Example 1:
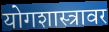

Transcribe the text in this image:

योगशास्त्रावर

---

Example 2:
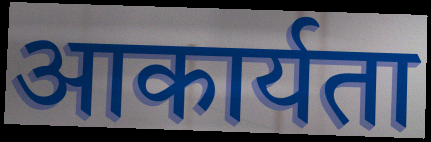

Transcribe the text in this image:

आकार्यता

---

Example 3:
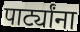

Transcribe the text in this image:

पार्ट्यांना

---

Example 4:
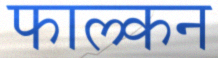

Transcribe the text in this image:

फाल्कन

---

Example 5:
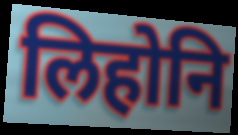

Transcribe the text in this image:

लिहोनि